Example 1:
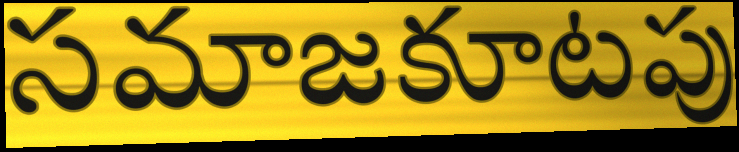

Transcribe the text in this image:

సమాజకూటపు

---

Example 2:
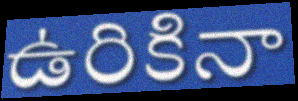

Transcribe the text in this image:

ఉరికినా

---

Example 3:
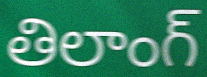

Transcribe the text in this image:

తిలాంగ్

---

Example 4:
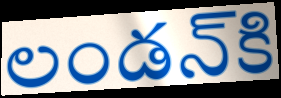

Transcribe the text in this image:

లండన్‌కి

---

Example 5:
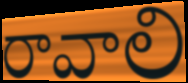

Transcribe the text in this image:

రావాలి